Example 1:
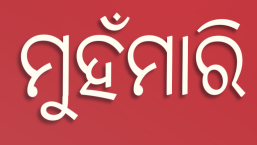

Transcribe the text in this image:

ମୁହଁମାରି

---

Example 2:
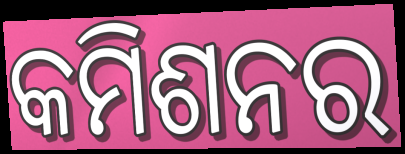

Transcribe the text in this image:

କମିଶନର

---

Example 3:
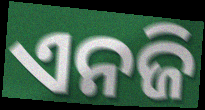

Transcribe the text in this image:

ଏନଜି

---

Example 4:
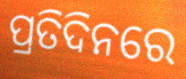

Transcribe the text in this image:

ପ୍ରତିଦିନରେ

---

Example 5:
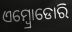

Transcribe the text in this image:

ଏମ୍ବ୍ରୋଡୋରି